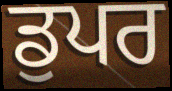
ਡੁਪਰ